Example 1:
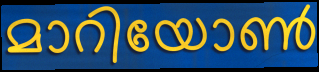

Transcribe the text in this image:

മാറിയോൺ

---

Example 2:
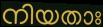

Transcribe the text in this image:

നിയതാഃ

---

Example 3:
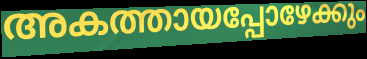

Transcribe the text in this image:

അകത്തായപ്പോഴേക്കും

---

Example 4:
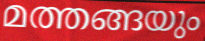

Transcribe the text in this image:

മത്തങ്ങയും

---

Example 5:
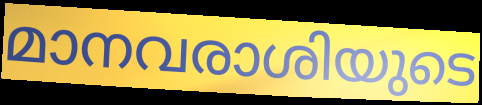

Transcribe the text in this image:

മാനവരാശിയുടെ